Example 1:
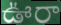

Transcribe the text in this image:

ఊరా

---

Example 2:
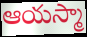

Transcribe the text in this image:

ఆయస్మా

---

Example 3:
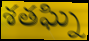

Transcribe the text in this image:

శతఘ్ని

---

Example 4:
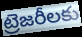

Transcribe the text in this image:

ట్రెజరీలకు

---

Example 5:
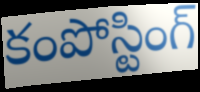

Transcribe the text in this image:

కంపోస్టింగ్